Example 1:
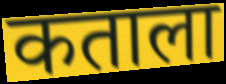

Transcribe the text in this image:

कताला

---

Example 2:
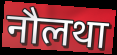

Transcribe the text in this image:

नौलथा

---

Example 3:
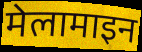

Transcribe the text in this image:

मेलामाइन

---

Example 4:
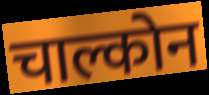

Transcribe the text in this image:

चाल्कोन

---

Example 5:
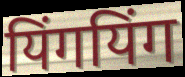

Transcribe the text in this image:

यिंगयिंग